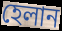
হেলান